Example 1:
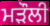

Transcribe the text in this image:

ਮੜੌਲੀ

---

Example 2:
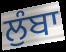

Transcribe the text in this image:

ਲੁੰਬਾ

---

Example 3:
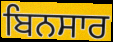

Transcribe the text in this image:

ਬਿਨਸਾਰ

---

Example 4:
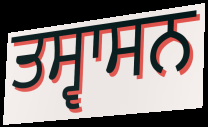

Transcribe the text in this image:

ਤਸ੍ਵਾਸਨ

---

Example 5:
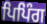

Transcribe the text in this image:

ਪਿਪਿੰਗ